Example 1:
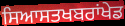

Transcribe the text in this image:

ਸਿਆਸਤਖਬਰਾਂਖੇਡ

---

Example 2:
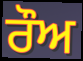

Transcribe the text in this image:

ਰੌਅ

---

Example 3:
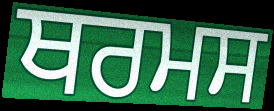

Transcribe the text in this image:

ਥਰਮਸ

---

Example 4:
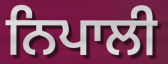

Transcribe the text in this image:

ਨਿਪਾਲੀ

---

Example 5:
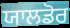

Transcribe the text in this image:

ਯਾਲਡੋਰ